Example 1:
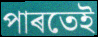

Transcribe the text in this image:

পাৰতেই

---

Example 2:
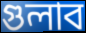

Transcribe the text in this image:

গুলাব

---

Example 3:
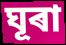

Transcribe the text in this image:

ঘূৰা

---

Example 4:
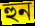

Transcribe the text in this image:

হুন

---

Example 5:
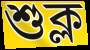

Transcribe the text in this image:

শুক্ল